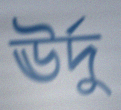
ঊর্দু